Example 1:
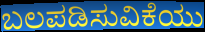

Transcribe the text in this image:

ಬಲಪಡಿಸುವಿಕೆಯು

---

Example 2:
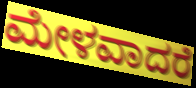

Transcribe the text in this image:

ಮೇಳವಾದರೆ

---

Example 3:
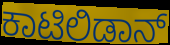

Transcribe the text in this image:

ಕಾಟಿಲಿಡಾನ್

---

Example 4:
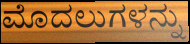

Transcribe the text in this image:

ಮೊದಲುಗಳನ್ನು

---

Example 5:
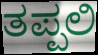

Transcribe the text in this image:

ತಪ್ಪಲಿ